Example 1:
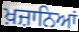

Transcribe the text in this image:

ਖ਼ਜ਼ਾਨਿਆਂ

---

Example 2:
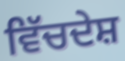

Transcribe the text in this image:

ਵਿੱਚਦੇਸ਼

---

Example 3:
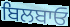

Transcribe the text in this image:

ਬਿਲਬਾਓ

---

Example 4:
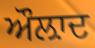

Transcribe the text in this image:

ਔਲ਼ਾਦ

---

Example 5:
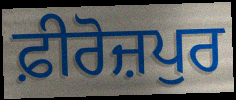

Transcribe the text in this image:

ਫ਼ੀਰੋਜ਼ਪੁਰ